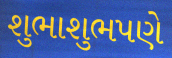
શુભાશુભપણે